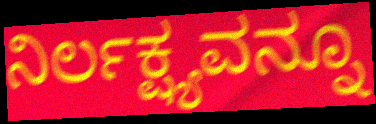
ನಿರ್ಲಕ್ಷ್ಯವನ್ನೂ